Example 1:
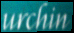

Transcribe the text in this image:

urchin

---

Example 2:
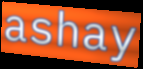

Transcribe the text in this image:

ashay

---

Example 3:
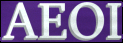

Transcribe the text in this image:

AEOI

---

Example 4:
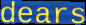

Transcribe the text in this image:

dears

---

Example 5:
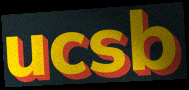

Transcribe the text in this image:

ucsb